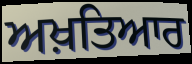
ਅਖ਼ਤਿਆਰ